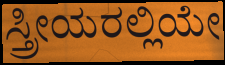
ಸ್ತ್ರೀಯರಲ್ಲಿಯೇ